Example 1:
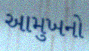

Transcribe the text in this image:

આમુખનો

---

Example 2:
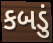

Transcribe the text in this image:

કબડું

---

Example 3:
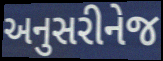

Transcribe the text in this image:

અનુસરીનેજ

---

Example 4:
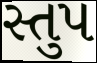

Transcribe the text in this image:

સ્તુપ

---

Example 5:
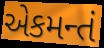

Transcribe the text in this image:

એકમન્તં